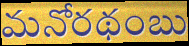
మనోరథంబు